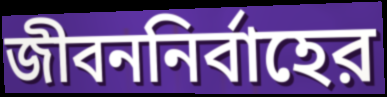
জীবননির্বাহের